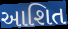
આશિત